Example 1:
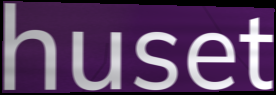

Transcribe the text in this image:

huset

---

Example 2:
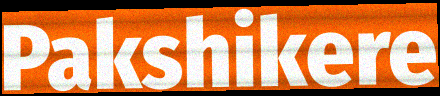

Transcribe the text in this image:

Pakshikere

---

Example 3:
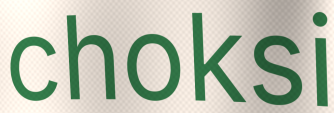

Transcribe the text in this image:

choksi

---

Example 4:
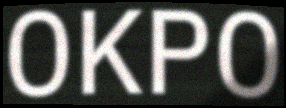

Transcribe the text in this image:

OKPO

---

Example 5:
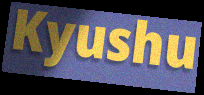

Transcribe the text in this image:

Kyushu